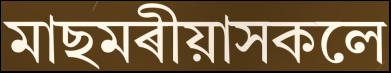
মাছমৰীয়াসকলে